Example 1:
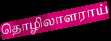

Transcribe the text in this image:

தொழிலாளராய்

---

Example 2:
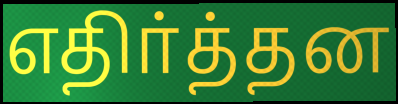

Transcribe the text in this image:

எதிர்த்தன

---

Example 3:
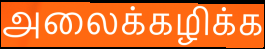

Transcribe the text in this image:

அலைக்கழிக்க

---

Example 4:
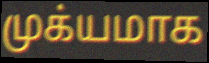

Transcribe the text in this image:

முக்யமாக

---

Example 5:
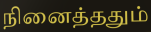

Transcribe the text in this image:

நினைத்ததும்